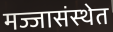
मज्जासंस्थेत